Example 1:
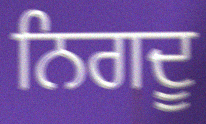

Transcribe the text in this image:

ਨਿਗਦੂ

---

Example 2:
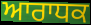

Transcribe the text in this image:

ਆਰਾਧਕ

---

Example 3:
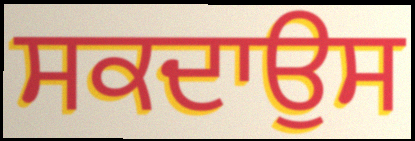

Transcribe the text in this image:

ਸਕਦਾਉਸ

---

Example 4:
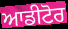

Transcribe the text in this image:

ਆਡੀਟੋਰ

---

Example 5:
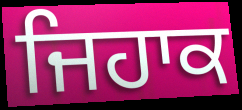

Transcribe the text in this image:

ਜਿਹਾਕ